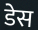
डेस